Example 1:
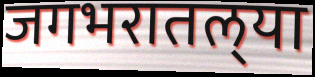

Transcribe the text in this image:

जगभरातल्या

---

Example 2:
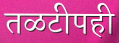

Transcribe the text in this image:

तळटीपही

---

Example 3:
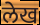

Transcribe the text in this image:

लेख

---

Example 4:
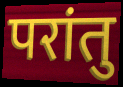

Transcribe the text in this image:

परांतु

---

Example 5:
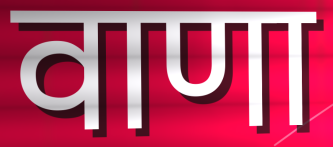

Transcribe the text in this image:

वाणा